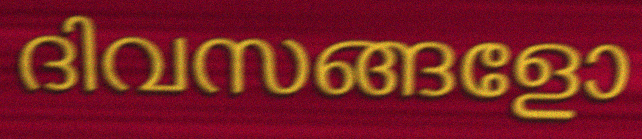
ദിവസങ്ങളോ